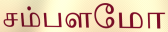
சம்பளமோ